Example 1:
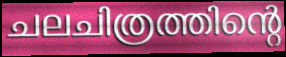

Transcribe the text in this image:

ചലചിത്രത്തിന്റെ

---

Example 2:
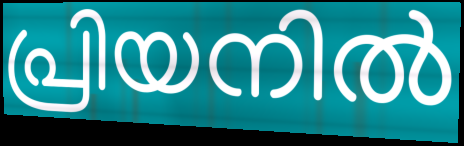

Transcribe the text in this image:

പ്രിയനിൽ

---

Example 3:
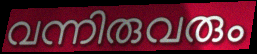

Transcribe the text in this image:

വന്നിരുവരും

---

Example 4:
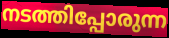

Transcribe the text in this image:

നടത്തിപ്പോരുന്ന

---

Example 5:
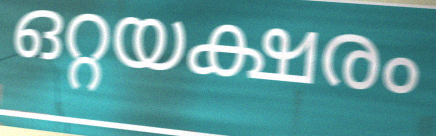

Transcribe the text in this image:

ഒറ്റയക്ഷരം